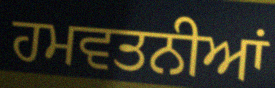
ਹਮਵਤਨੀਆਂ